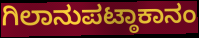
ಗಿಲಾನುಪಟ್ಠಾಕಾನಂ